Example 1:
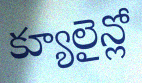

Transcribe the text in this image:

క్యూలైన్లో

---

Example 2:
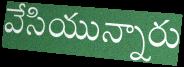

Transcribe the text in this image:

వేసియున్నారు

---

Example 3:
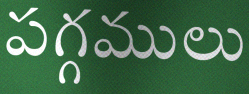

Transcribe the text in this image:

పగ్గములు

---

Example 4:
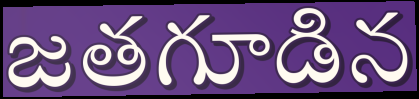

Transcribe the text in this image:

జతగూడిన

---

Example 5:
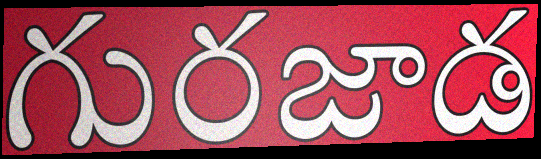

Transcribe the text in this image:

గురజాడ